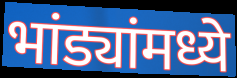
भांड्यांमध्ये